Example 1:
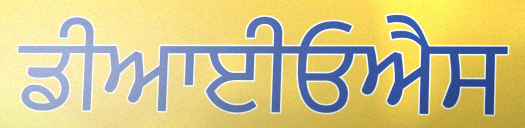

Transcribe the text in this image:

ਡੀਆਈਓਐਸ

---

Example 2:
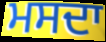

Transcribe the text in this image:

ਮਸਦਾ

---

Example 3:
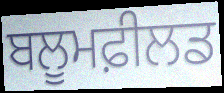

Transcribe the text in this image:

ਬਲੂਮਫ਼ੀਲਡ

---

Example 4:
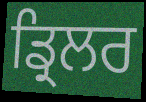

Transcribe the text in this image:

ਡ੍ਰਿਲਰ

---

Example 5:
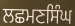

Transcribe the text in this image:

ਲਛਮਣਸਿੰਘ